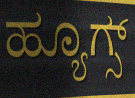
ಹ್ಯೂಗ್ಸ್